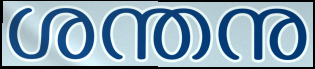
ശന്തനു